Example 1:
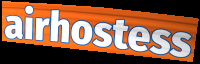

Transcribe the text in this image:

airhostess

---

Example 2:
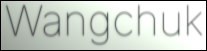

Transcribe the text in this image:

Wangchuk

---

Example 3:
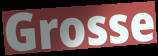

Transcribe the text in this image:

Grosse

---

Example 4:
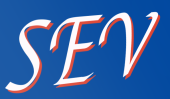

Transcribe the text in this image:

SEV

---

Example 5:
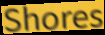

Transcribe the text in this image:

Shores